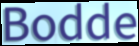
Bodde